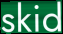
skid